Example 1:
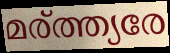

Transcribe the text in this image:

മര്ത്ത്യരേ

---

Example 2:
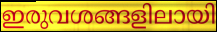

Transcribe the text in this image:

ഇരുവശങ്ങളിലായി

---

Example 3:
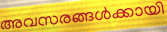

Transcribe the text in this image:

അവസരങ്ങൾക്കായി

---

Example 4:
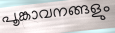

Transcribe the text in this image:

പൂങ്കാവനങ്ങളും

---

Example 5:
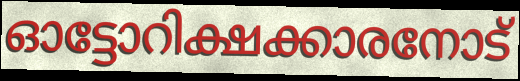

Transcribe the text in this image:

ഓട്ടോറിക്ഷക്കാരനോട്